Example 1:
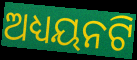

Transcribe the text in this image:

ଅଧ୍ୟୟନଟି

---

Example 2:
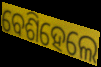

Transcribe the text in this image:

ବେଶିହେଲେ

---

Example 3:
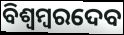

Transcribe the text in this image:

ବିଶ୍ୱମ୍ବରଦେବ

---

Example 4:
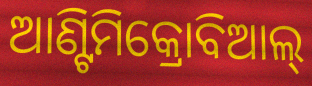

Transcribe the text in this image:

ଆଣ୍ଟିମିକ୍ରୋବିଆଲ୍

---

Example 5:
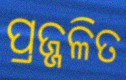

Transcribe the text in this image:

ପ୍ରଜ୍ଜଳିତ